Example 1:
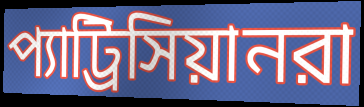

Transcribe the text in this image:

প্যাট্রিসিয়ানরা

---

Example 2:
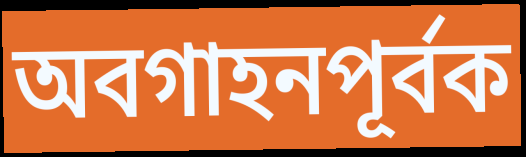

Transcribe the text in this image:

অবগাহনপূর্বক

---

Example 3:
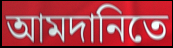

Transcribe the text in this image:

আমদানিতে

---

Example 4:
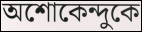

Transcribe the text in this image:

অশোকেন্দুকে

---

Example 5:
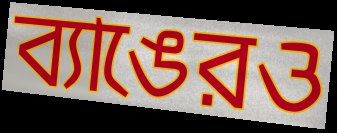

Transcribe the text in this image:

ব্যাঙেরও